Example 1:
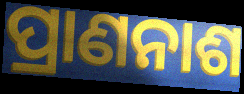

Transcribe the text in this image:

ପ୍ରାଣନାଶ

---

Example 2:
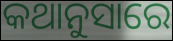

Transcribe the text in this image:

କଥାନୁସାରେ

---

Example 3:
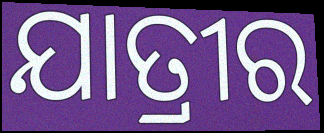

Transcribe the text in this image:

ଯାତ୍ରୀର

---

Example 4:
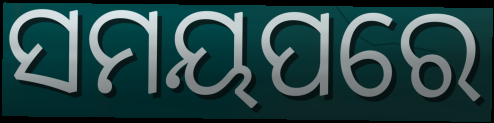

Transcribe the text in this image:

ସମୟପରେ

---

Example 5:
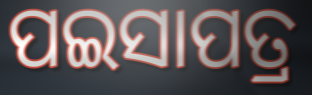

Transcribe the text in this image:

ପଇସାପତ୍ର